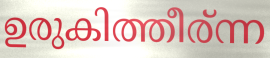
ഉരുകിത്തീര്ന്ന